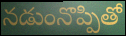
నడుంనొప్పితో